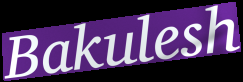
Bakulesh